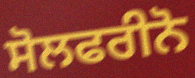
ਸੋਲਫਰੀਨੋ